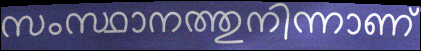
സംസ്ഥാനത്തുനിന്നാണ്